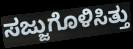
ಸಜ್ಜುಗೊಳಿಸಿತ್ತು